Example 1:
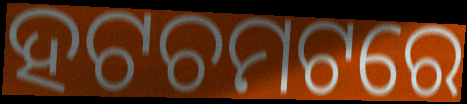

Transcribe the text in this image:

ହଟଚମଟରେ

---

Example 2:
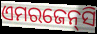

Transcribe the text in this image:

ଏମରଜେନ୍‌ସି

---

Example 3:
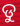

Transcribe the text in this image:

ଡୁ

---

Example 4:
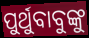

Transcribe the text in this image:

ପୁର୍ଥୁବାବୁଙ୍କୁ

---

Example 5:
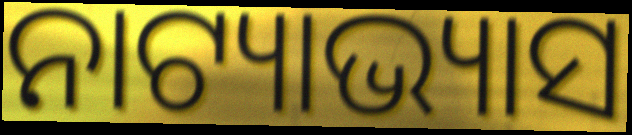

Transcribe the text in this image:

ନାଟ୍ୟାଭ୍ୟାସ